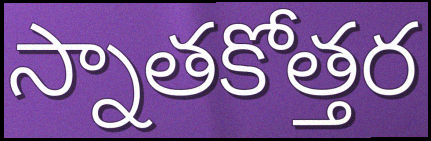
స్నాతకోత్తర